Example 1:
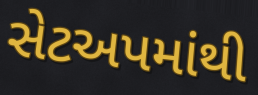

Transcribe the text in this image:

સેટઅપમાંથી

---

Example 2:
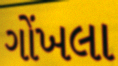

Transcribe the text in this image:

ગોંખલા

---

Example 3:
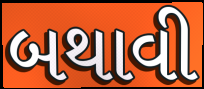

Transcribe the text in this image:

બથાવી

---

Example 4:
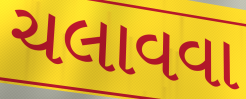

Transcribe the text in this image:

ચલાવવા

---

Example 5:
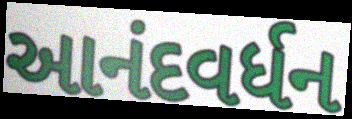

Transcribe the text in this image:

આનંદવર્ધન